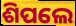
ଶିପଲେ